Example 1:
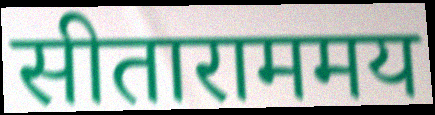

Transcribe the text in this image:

सीताराममय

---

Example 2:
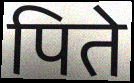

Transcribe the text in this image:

पिते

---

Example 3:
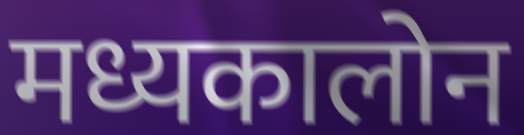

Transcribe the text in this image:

मध्यकालोन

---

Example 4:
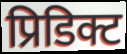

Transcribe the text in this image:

प्रिडिक्ट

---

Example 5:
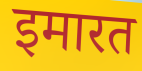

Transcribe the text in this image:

इमारत